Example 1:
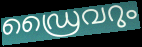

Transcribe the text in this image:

ഡ്രൈവറും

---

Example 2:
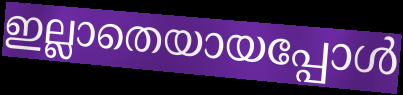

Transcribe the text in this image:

ഇല്ലാതെയായപ്പോൾ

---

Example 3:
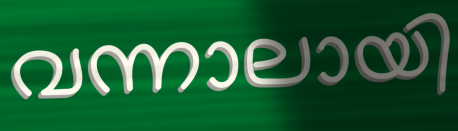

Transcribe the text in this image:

വന്നാലായി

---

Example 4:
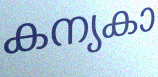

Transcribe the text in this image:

കന്യകാ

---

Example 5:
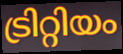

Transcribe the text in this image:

ട്രിറ്റിയം